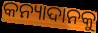
କନ୍ୟାଦାନକୁ